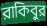
রাকিবুর